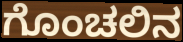
ಗೊಂಚಲಿನ